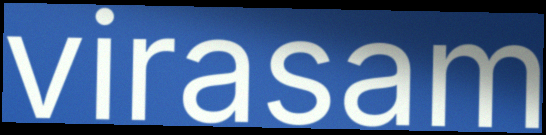
virasam